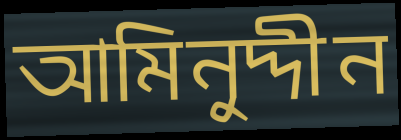
আমিনুদ্দীন